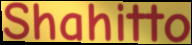
Shahitto